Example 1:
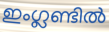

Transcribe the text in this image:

ഇംഗ്ലണ്ടിൽ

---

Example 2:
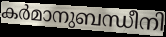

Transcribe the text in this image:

കർമാനുബന്ധീനി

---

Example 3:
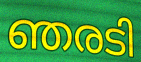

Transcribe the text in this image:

ഞരടി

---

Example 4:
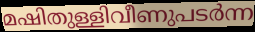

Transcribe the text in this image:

മഷിതുള്ളിവീണുപടർന്ന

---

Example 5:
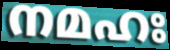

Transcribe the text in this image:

നമഹഃ